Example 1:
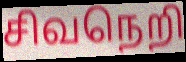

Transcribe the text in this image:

சிவநெறி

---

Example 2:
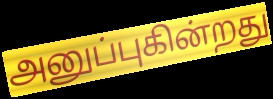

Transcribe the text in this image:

அனுப்புகின்றது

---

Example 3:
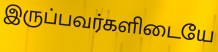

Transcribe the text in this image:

இருப்பவர்களிடையே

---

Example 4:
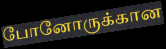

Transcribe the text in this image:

போனோருக்கான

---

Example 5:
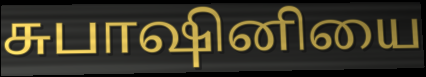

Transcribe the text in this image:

சுபாஷினியை